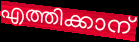
എത്തിക്കാന്